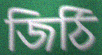
জিঠি